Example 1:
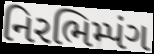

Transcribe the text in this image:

નિરભિમ્પંગ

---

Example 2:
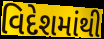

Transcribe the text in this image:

વિદેશમાંથી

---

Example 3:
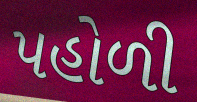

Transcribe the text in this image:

પહોળી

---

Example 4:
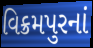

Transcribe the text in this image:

વિક્રમપુરનાં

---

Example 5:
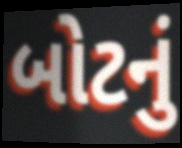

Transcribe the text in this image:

બોટનું